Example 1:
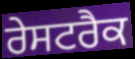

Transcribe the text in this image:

ਰੇਸਟਰੈਕ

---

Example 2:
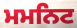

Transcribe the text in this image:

ਮਮਨਿਟ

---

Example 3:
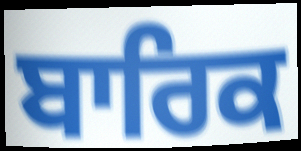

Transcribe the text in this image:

ਬਾਰਿਕ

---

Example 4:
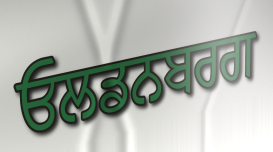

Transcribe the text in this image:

ਓਲਡਨਬਰਗ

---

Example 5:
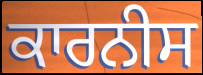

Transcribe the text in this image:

ਕਾਰਨੀਸ